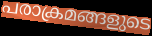
പരാക്രമങ്ങളുടെ